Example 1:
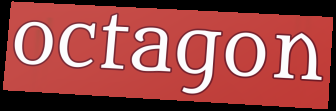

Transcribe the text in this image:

octagon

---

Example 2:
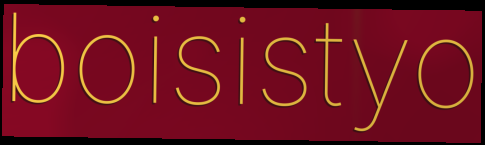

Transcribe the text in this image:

boisistyo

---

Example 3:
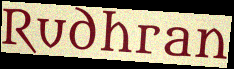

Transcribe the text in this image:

Rudhran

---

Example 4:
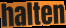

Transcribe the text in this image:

halten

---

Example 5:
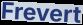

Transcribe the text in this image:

Frevert